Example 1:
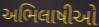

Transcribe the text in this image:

અભિલાષીઓ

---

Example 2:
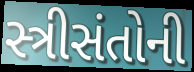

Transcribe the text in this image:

સ્ત્રીસંતોની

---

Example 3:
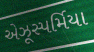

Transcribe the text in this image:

એઝૂસ્પર્મિયા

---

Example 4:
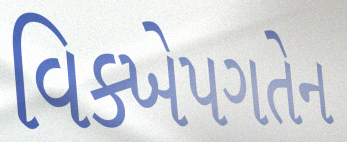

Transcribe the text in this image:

વિક્ખેપગતેન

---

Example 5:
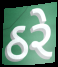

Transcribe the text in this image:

ઠરે